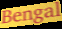
Bengal